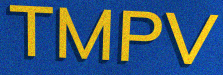
TMPV